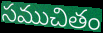
సముచితం